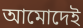
আমোদেই